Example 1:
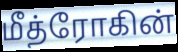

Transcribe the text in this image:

மீத்ரோகின்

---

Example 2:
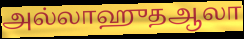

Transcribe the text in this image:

அல்லாஹுதஆலா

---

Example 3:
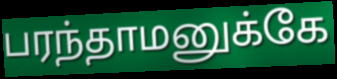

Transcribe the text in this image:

பரந்தாமனுக்கே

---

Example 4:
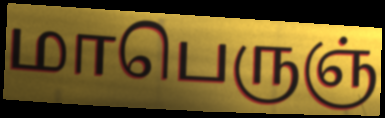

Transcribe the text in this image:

மாபெருஞ்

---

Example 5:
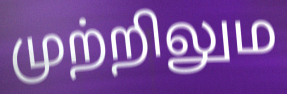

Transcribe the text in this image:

முற்றிலும